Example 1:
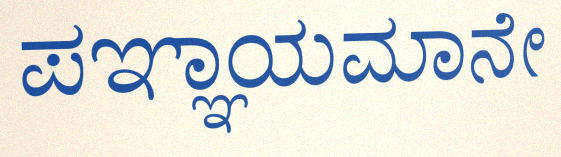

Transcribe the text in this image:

ಪಞ್ಞಾಯಮಾನೇ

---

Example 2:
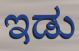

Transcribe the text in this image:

ಇಡು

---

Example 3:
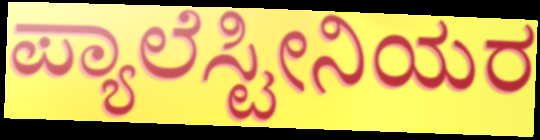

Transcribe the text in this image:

ಪ್ಯಾಲೆಸ್ಟೀನಿಯರ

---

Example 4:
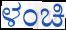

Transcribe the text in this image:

ಳಂಚಿ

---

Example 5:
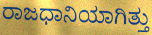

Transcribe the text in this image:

ರಾಜಧಾನಿಯಾಗಿತ್ತು